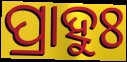
ପ୍ରାହୁଃ